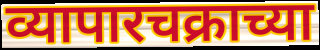
व्यापारचक्राच्या